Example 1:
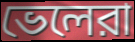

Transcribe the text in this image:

ভেলেরা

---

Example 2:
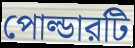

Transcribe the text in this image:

পোল্ডারটি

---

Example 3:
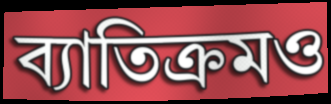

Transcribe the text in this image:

ব্যাতিক্রমও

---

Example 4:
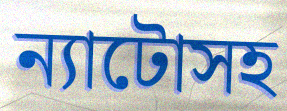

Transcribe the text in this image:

ন্যাটোসহ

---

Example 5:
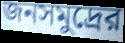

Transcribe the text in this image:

জনসমুদ্রের